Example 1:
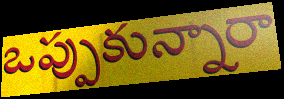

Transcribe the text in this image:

ఒప్పుకున్నారా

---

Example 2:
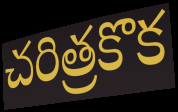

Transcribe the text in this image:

చరిత్రకొక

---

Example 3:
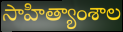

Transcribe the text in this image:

సాహిత్యాంశాల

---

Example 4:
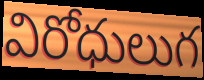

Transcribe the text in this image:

విరోధులుగ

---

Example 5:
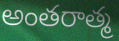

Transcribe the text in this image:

అంతరాత్మ